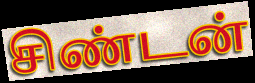
சிண்டன்